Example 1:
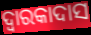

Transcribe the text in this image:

ଦ୍ୱାରକାଦାସ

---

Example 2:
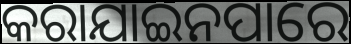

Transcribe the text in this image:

କରାଯାଇନପାରେ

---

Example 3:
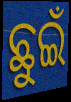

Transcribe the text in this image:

ଛୁଇଁ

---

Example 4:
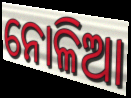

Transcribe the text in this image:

ନୋଳିଆ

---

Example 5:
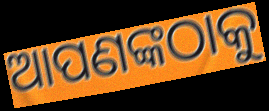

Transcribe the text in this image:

ଆପଣଙ୍କଠାକୁ